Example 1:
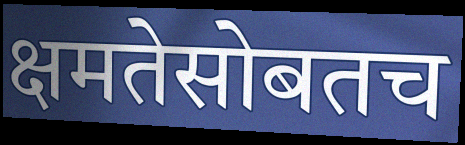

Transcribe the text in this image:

क्षमतेसोबतच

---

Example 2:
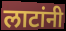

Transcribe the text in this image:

लाटांनी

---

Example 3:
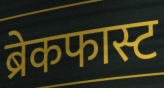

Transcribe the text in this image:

ब्रेकफास्ट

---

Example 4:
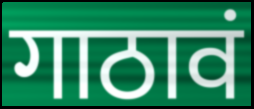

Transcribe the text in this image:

गाठावं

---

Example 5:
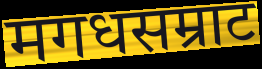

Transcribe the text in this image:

मगधसम्राट